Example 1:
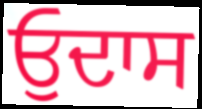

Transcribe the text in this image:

ਓੁਦਾਸ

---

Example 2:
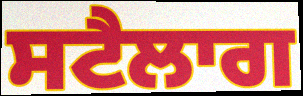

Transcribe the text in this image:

ਸਟੈਲਾਗ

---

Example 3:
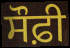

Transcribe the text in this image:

ਸੌਫ਼ੀ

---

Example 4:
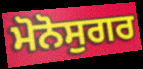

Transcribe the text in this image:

ਮੋਨੋਸੁਗਰ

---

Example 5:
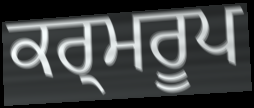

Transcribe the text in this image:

ਕਰ੍ਮਰੂਪ